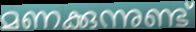
മണക്കുന്നുണ്ട്